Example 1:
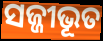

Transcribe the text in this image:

ସଜ୍ଜୀଭୂତ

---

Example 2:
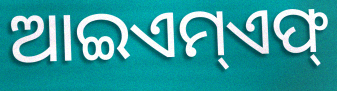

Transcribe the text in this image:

ଆଇଏମ୍ଏଫ୍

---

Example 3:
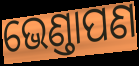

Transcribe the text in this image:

ଭେଣ୍ଡାପଣ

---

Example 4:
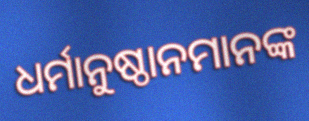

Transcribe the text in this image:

ଧର୍ମାନୁଷ୍ଠାନମାନଙ୍କ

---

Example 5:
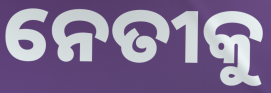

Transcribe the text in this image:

ନେତୀକୁ